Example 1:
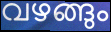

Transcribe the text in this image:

വഴങ്ങും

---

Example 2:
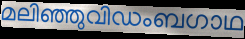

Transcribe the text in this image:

മലിഞ്ഞുവിഡംബഗാഥ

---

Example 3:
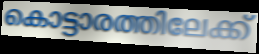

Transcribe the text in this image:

കൊട്ടാരത്തിലേക്ക്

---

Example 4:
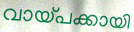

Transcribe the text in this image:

വായ്പക്കായി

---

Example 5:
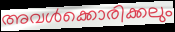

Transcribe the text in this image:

അവൾക്കൊരിക്കലും